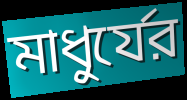
মাধুর্যের